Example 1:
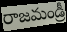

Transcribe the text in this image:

రాజమండ్రీ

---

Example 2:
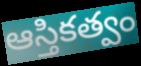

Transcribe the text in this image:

ఆస్తికత్వం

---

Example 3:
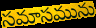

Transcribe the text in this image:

సమాసమును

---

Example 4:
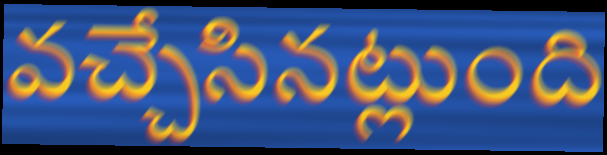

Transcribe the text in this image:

వచ్చేసినట్లుంది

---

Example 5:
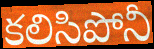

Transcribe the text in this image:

కలిసిపోనీ